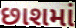
છાશમાં